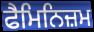
ਫੈਮਿਨਿਜ਼ਮ